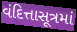
વંદિત્તાસૂત્રમાં